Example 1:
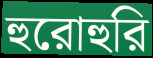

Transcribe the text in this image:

হুরোহুরি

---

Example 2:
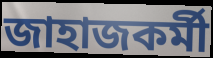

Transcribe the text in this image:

জাহাজকর্মী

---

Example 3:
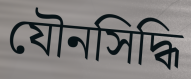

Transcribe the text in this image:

যৌনসিদ্ধি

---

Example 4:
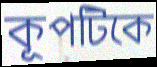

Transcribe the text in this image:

কূপটিকে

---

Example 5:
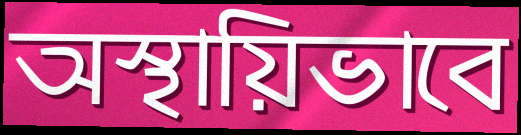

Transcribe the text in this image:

অস্থায়িভাবে